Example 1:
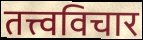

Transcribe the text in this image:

तत्त्वविचार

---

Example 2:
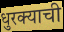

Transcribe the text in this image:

धुरक्याची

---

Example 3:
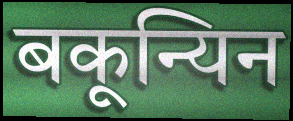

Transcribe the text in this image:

बकून्यिन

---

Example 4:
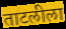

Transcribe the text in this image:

ताटलीला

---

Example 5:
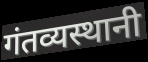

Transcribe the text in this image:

गंतव्यस्थानी